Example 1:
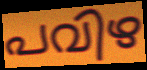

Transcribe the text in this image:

പവിഴ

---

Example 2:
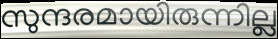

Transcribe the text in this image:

സുന്ദരമായിരുന്നില്ല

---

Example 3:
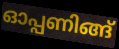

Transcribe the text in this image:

ഓപ്പണിങ്ങ്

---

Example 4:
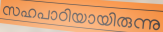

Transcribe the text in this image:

സഹപാഠിയായിരുന്നു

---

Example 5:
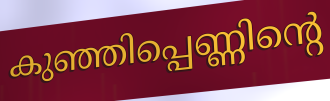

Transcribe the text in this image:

കുഞ്ഞിപ്പെണ്ണിന്റെ